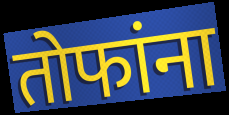
तोफांना